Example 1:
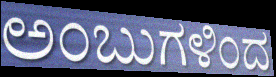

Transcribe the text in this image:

ಅಂಬುಗಳಿಂದ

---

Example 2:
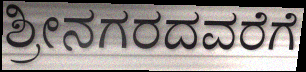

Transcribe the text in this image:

ಶ್ರೀನಗರದವರೆಗೆ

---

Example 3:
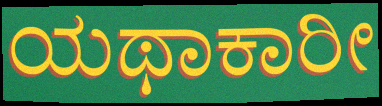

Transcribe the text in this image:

ಯಥಾಕಾರೀ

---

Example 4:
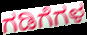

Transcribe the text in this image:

ಗಡಿಗೆಗಳ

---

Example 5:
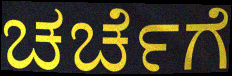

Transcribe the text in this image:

ಚರ್ಚೆಗೆ